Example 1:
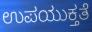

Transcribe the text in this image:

ಉಪಯುಕ್ತತೆ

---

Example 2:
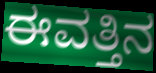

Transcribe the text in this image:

ಈವತ್ತಿನ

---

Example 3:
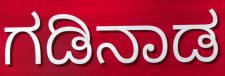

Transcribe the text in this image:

ಗಡಿನಾಡ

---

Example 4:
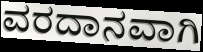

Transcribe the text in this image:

ವರದಾನವಾಗಿ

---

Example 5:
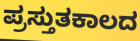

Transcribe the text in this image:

ಪ್ರಸ್ತುತಕಾಲದ